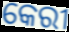
କେରୀ